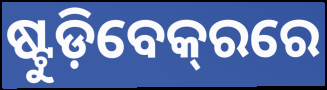
ଷ୍ଟୁଡ଼ିବେକ୍‌ରରେ